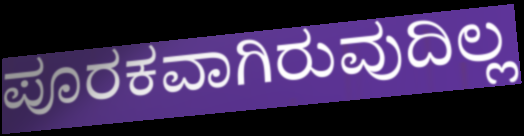
ಪೂರಕವಾಗಿರುವುದಿಲ್ಲ